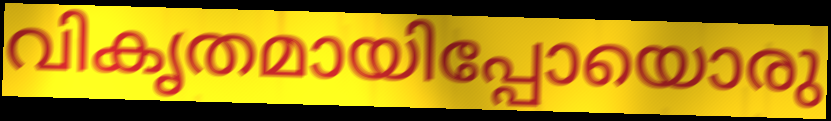
വികൃതമായിപ്പോയൊരു